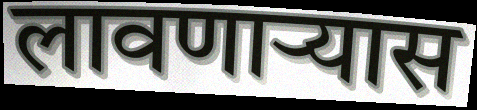
लावणाऱ्यास